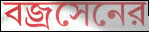
বজ্রসেনের